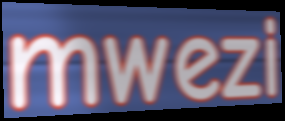
mwezi